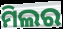
ମିଲର